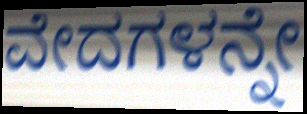
ವೇದಗಳನ್ನೇ